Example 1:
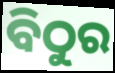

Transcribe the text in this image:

ବିଠୁର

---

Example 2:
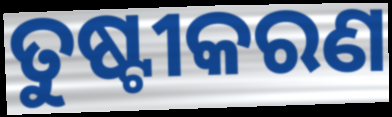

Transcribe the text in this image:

ତୁଷ୍ଟୀକରଣ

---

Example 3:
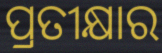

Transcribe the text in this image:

ପ୍ରତୀକ୍ଷାର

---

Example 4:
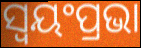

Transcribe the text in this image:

ସ୍ଵୟଂପ୍ରଭା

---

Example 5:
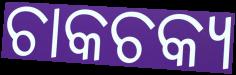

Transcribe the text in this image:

ଚାକଚକ୍ୟ